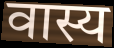
वास्य